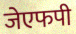
जेएफपी